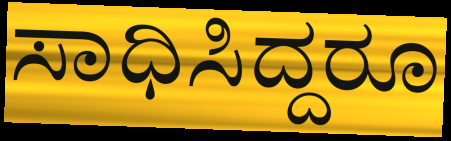
ಸಾಧಿಸಿದ್ದರೂ